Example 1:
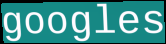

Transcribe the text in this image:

googles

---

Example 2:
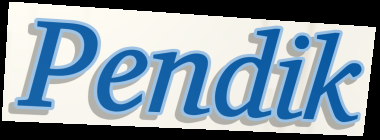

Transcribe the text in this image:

Pendik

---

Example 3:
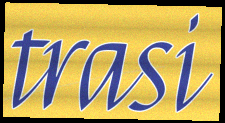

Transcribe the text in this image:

trasi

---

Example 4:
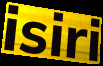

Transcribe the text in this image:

isiri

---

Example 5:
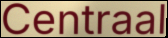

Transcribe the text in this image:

Centraal